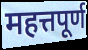
महत्तपूर्ण